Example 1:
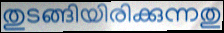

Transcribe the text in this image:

തുടങ്ങിയിരിക്കുന്നതു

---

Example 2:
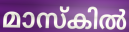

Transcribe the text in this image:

മാസ്കിൽ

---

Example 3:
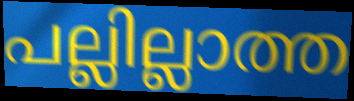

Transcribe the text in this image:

പല്ലില്ലാത്ത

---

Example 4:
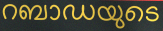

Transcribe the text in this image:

റബാഡയുടെ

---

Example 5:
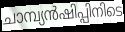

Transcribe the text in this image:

ചാമ്പ്യൻഷിപ്പിനിടെ